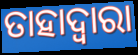
ତାହାଦ୍ଵାରା